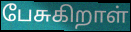
பேசுகிறாள்